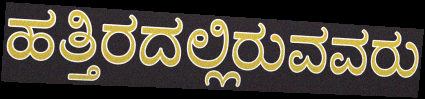
ಹತ್ತಿರದಲ್ಲಿರುವವರು